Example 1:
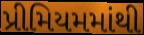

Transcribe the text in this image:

પ્રીમિયમમાંથી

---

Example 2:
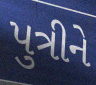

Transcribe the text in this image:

પુત્રીને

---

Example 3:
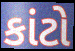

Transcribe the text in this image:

કાંટો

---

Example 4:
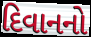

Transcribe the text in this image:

દિવાનનો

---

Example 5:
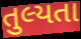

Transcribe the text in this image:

તુલ્યતા